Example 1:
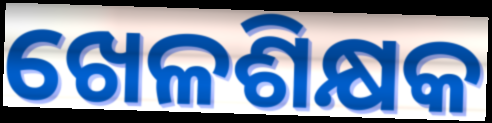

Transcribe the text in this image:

ଖେଳଶିକ୍ଷକ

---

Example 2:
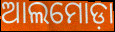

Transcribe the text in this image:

ଆଲମୋଡ଼ା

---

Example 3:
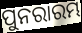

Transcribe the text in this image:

ପୁନରାରମ୍ଭ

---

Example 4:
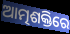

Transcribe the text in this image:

ଆତ୍ମଶକ୍ତିରେ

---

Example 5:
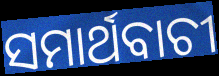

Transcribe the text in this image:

ସମାର୍ଥବାଚୀ